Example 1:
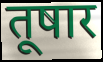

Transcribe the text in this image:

तूषार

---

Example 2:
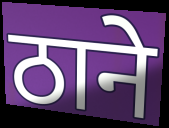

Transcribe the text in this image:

ठाने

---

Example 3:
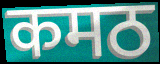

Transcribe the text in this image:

कमठ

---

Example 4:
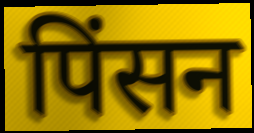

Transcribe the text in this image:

पिंसन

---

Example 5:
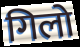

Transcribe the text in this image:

गिलो